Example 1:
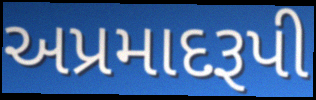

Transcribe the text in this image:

અપ્રમાદરૂપી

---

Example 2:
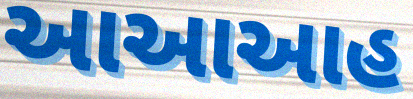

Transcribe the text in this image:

આઆઆહ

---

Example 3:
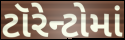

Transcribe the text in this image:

ટૉરેન્ટોમાં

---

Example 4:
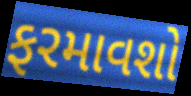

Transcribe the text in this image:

ફરમાવશો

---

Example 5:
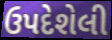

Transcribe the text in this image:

ઉપદેશેલી